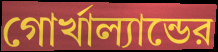
গোর্খাল্যান্ডের